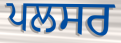
ਪਲਸਰ